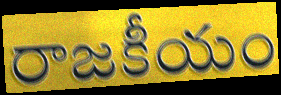
రాజకీయం